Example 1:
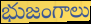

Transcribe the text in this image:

భుజంగాలు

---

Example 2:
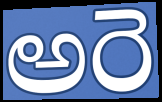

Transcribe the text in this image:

అరె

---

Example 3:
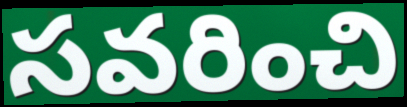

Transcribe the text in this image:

సవరించి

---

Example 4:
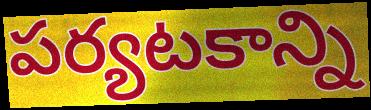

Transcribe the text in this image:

పర్యటకాన్ని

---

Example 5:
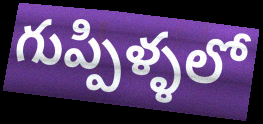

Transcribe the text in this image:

గుప్పిళ్ళలో